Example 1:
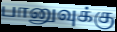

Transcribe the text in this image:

பானுவுக்கு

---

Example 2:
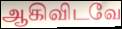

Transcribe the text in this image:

ஆகிவிடவே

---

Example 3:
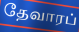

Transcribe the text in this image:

தேவாரப்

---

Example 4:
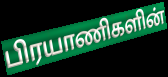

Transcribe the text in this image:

பிரயாணிகளின்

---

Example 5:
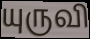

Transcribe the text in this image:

யுருவி